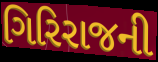
ગિરિરાજની